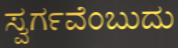
ಸ್ವರ್ಗವೆಂಬುದು